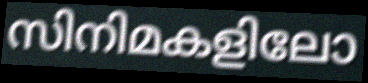
സിനിമകളിലോ